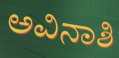
ಅವಿನಾಶಿ